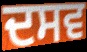
ਦਸਵ